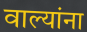
वाल्यांना